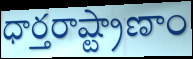
ధార్తరాష్ట్రాణాం